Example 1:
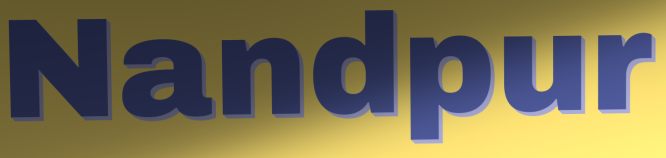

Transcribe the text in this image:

Nandpur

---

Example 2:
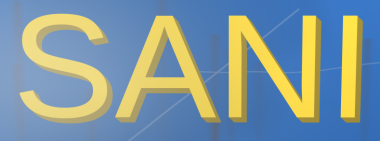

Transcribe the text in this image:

SANI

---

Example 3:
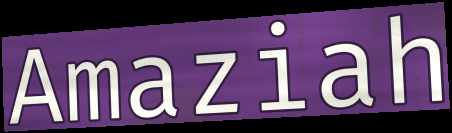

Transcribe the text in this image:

Amaziah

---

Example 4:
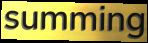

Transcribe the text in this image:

summing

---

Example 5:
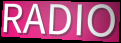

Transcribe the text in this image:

RADIO